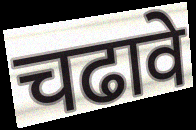
चढावे